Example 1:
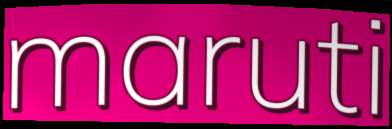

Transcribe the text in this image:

maruti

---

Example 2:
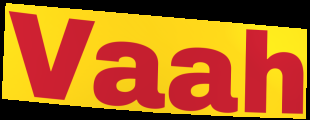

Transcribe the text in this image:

Vaah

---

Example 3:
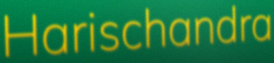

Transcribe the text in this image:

Harischandra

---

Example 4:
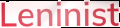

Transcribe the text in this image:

Leninist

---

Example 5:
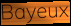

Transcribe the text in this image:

Bayeux